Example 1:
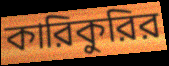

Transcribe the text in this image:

কারিকুরির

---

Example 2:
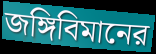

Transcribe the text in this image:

জঙ্গিবিমানের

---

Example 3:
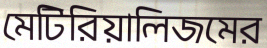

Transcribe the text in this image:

মেটিরিয়ালিজমের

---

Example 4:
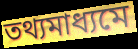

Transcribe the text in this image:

তথ্যমাধ্যমে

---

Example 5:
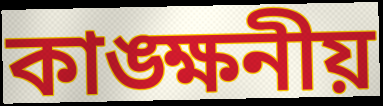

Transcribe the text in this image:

কাঙ্ক্ষনীয়